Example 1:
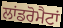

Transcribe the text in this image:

ਲਾਂਡਰੋਮੈਟਾਂ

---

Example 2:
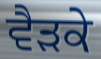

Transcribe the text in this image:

ਵੈੜਕੇ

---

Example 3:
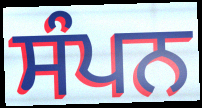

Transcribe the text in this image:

ਸੰਪਨ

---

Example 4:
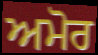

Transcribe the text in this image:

ਅਮੋਰ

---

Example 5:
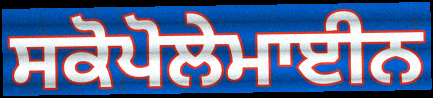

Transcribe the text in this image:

ਸਕੋਪੋਲੇਮਾਈਨ